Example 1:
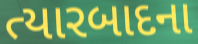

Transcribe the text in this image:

ત્યારબાદના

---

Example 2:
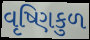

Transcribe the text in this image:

વૃષ્ણિકુળ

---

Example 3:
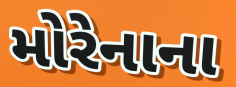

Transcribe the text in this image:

મોરેનાના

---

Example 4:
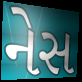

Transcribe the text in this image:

નેસ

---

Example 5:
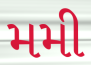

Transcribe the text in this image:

મમી